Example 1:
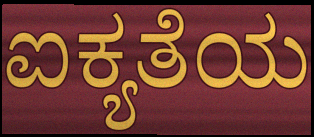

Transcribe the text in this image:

ಐಕ್ಯತೆಯ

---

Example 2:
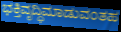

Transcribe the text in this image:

ಭಕ್ತಿವೃದ್ಧಿಮಾಡುವಂತಹ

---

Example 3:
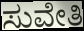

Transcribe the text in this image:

ಸುವೇತಿ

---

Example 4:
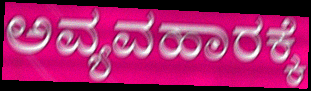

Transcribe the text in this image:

ಅವ್ಯವಹಾರಕ್ಕೆ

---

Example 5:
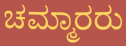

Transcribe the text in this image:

ಚಮ್ಮಾರರು